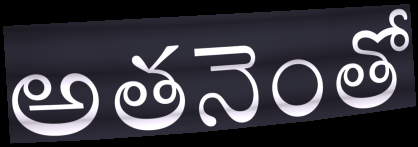
అతనెంతో